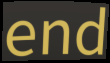
end